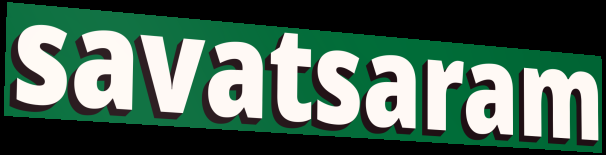
savatsaram